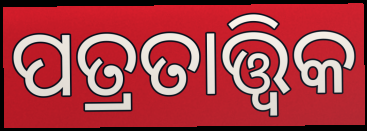
ପତ୍ରତାତ୍ତ୍ୱିକ